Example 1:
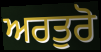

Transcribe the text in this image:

ਅਰਤੁਰੋ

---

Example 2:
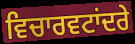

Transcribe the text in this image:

ਵਿਚਾਰਵਟਾਂਦਰੇ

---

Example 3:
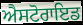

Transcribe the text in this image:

ਐਸਟੋਰਾਇਡ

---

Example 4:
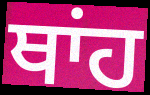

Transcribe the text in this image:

ਥਾਂਹ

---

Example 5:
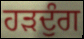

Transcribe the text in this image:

ਹੜਦੁੰਗ